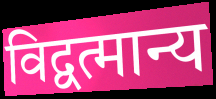
विद्वत्मान्य